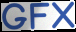
GFX